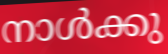
നാൾക്കു